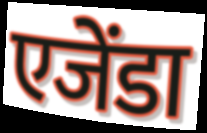
एजेंडा